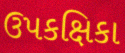
ઉપકક્ષિકા